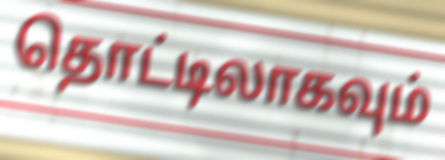
தொட்டிலாகவும்